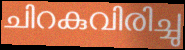
ചിറകുവിരിച്ചു